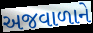
અજવાળાને